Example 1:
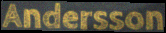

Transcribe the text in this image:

Andersson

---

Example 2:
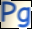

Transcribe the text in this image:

Pg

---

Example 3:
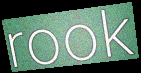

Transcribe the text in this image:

rook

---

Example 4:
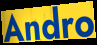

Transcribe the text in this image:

Andro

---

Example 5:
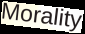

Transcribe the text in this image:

Morality